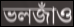
ভলজাঁও